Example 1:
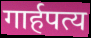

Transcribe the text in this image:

गार्हपत्य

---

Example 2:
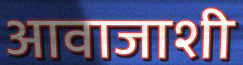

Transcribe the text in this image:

आवाजाशी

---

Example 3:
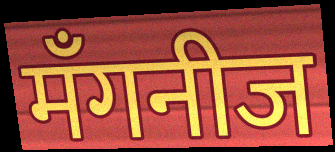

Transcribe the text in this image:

मँगनीज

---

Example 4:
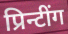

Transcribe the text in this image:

प्रिन्टींग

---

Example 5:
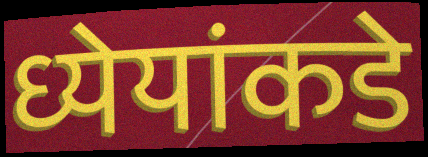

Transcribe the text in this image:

ध्येयांकडे